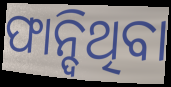
ଫାନ୍ଦିଥିବା